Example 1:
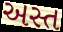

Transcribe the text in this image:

અસ્ત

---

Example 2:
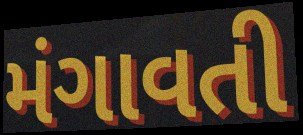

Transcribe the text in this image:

મંગાવતી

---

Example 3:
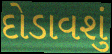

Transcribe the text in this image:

દોડાવશું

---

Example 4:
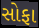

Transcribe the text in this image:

સોફા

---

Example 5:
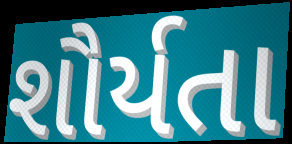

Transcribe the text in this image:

શૌર્યતા